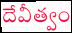
దేవీత్వం